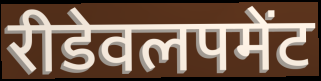
रीडेवलपमेंट